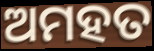
ଅମହତ